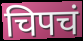
चिपचं